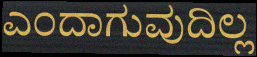
ಎಂದಾಗುವುದಿಲ್ಲ